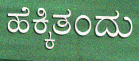
ಹೆಕ್ಕಿತಂದು